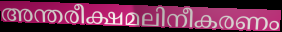
അന്തരീക്ഷമലിനീകരണം